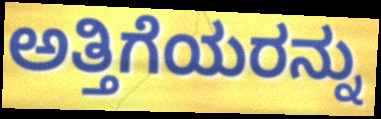
ಅತ್ತಿಗೆಯರನ್ನು